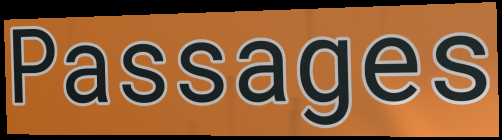
Passages